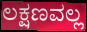
ಲಕ್ಷಣವಲ್ಲ